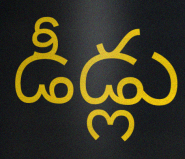
డీడ్లు